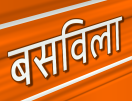
बसविला